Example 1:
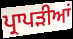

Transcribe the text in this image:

ਪ੍ਰਾਪੜੀਆਂ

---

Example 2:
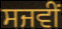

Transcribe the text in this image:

ਸਜਵੀਂ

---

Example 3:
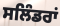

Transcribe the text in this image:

ਸਲਿੰਡਰਾਂ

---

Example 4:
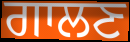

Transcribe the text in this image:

ਗਾਲਣ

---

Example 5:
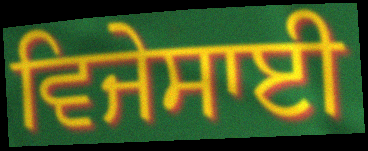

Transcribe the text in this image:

ਵਿਜੇਸਾਈ